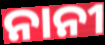
ନାନୀ